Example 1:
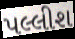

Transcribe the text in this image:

પલ્લીશ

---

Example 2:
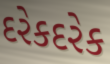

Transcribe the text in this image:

દરેકદરેક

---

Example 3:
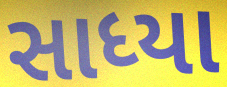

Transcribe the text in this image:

સાધ્યા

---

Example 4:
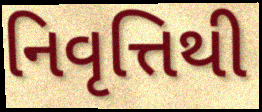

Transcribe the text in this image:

નિવૃત્તિથી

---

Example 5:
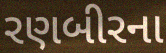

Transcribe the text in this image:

રણબીરના